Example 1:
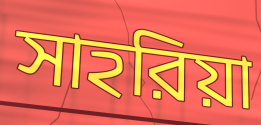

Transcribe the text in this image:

সাহরিয়া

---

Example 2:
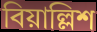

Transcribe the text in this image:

বিয়াল্লিশ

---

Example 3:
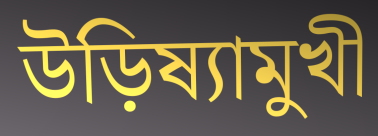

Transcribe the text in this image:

উড়িষ্যামুখী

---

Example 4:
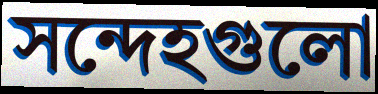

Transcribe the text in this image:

সন্দেহগুলো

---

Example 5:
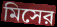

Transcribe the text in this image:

মিসের